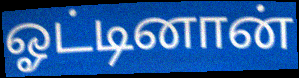
ஓட்டினான்